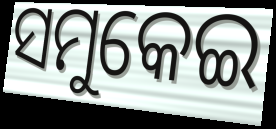
ସମୁକେଇ